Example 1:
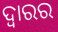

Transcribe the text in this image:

ଦ୍ୱାରର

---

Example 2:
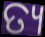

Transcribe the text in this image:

ତ୍ୟ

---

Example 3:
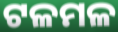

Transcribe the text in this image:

ଟଳମଳ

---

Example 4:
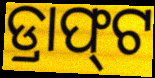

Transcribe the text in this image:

ଡ୍ରାଫ୍‌ଟ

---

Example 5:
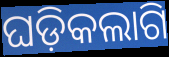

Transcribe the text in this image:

ଘଡ଼ିକଲାଗି